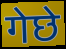
गेछे